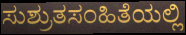
ಸುಶ್ರುತಸಂಹಿತೆಯಲ್ಲಿ